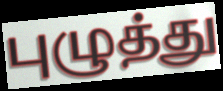
புழுத்து